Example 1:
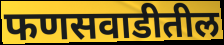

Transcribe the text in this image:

फणसवाडीतील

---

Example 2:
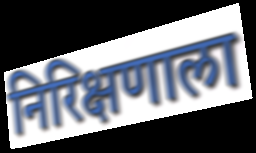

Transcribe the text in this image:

निरिक्षणाला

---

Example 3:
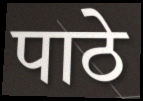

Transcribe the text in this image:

पाठे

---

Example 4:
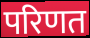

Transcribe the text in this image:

परिणत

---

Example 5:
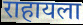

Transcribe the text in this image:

राहायला